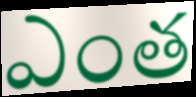
ఎంత